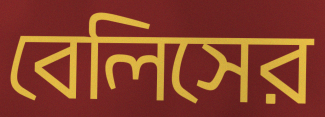
বেলিসের